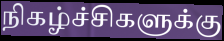
நிகழ்ச்சிகளுக்கு